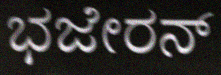
ಭಜೇರನ್